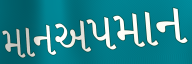
માનઅપમાન